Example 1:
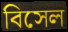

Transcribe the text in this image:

বিসেল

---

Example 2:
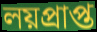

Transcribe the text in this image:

লয়প্রাপ্ত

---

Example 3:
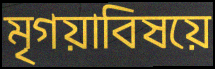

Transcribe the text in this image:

মৃগয়াবিষয়ে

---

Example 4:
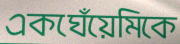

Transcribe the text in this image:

একঘেঁয়েমিকে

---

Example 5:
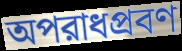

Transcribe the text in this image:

অপরাধপ্রবণ